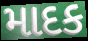
માદક